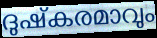
ദുഷ്‌കരമാവും